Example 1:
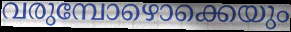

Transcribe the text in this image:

വരുമ്പോഴൊക്കെയും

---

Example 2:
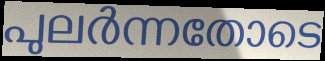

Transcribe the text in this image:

പുലർന്നതോടെ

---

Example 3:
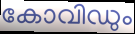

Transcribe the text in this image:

കോവിഡും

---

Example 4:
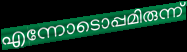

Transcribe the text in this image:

എന്നോടൊപ്പമിരുന്ന്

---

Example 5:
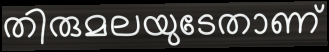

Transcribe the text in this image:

തിരുമലയുടേതാണ്